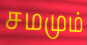
சமமும்